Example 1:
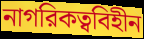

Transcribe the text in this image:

নাগরিকত্ববিহীন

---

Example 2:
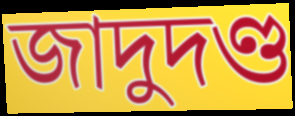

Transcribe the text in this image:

জাদুদণ্ড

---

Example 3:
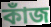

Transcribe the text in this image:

কাঁজ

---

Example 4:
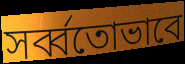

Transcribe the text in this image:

সর্ব্বতোভাবে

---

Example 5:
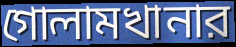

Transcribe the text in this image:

গোলামখানার